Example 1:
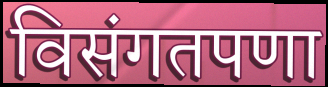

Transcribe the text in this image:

विसंगतपणा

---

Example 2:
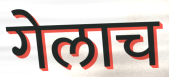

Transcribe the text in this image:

गेलाच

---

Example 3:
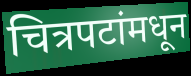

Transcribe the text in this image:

चित्रपटांमधून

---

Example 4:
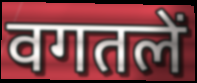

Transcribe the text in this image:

वगतलें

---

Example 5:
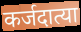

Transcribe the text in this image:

कर्जदात्या